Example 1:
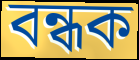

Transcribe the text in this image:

বন্ধক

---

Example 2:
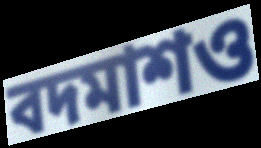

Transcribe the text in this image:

বদমাশও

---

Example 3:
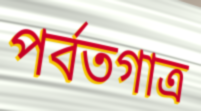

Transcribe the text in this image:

পর্বতগাত্র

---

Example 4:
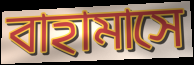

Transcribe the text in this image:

বাহামাসে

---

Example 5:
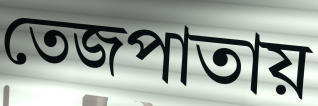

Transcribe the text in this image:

তেজপাতায়